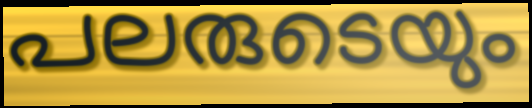
പലരുടെയും